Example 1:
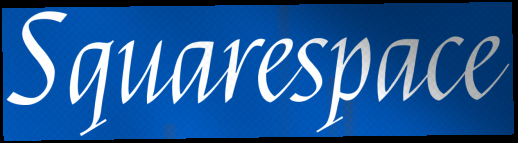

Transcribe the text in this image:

Squarespace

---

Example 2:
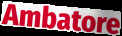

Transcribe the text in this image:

Ambatore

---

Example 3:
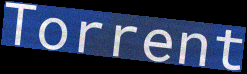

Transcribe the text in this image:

Torrent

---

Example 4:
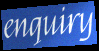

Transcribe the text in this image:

enquiry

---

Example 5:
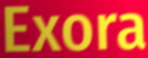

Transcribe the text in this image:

Exora